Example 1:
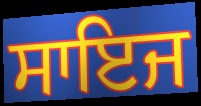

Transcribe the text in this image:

ਸਾਇਜ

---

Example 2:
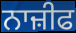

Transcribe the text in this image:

ਨਾਜ਼ੀਫ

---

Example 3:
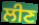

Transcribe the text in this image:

ਲੀਣ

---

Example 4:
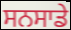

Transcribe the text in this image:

ਸਨਸਾਡੇ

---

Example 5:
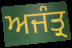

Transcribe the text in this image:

ਅਜੰਤ੍ਰ